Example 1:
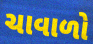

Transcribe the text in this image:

ચાવાળો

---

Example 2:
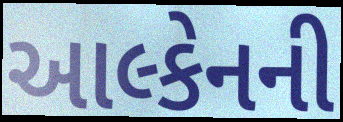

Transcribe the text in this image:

આલ્કેનની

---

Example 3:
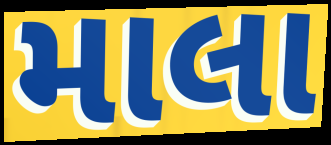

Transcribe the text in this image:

માલા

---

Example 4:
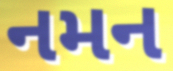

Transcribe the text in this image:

નમન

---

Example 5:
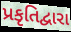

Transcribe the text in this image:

પ્રકૃતિદ્વારા